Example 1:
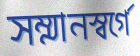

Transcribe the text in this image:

সম্মানস্বর্গে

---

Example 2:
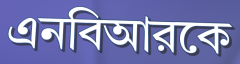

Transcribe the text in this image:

এনবিআরকে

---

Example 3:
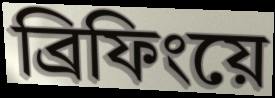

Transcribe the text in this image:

ব্রিফিংয়ে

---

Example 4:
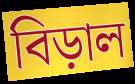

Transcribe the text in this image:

বিড়াল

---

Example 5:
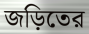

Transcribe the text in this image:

জড়িতের